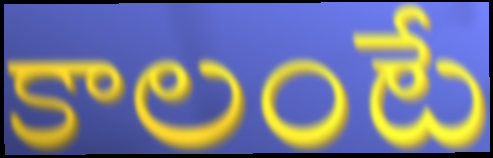
కాలంటే